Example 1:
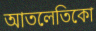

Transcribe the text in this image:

আতলেতিকো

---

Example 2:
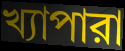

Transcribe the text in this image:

খ্যাপারা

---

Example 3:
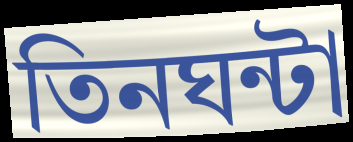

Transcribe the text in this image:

তিনঘন্টা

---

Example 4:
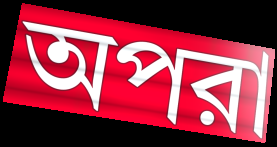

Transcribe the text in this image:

অপরা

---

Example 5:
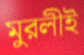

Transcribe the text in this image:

মুরলীই